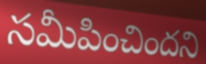
సమీపించిందని